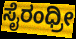
ಸೈರಂಧ್ರೀ